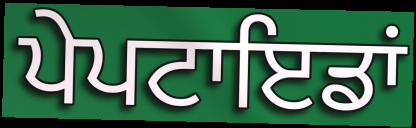
ਪੇਪਟਾਇਡਾਂ